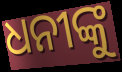
ଧନୀଙ୍କୁ